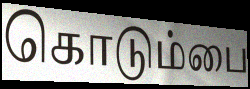
கொடும்பை